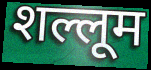
शल्लूम